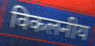
विकलनीय